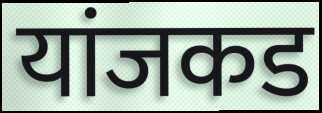
यांजकड